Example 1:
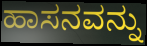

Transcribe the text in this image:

ಹಾಸನವನ್ನು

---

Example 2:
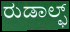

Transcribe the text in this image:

ರುಡಾಲ್ಫ್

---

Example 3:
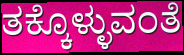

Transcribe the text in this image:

ತಕ್ಕೊಳ್ಳುವಂತೆ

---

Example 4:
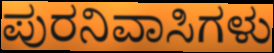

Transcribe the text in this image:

ಪುರನಿವಾಸಿಗಳು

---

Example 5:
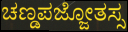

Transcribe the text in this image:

ಚಣ್ಡಪಜ್ಜೋತಸ್ಸ